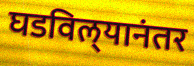
घडविल्यानंतर